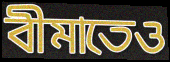
বীমাতেও